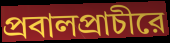
প্রবালপ্রাচীরে